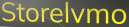
Storelvmo